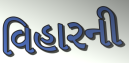
વિહારની